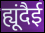
ह्यूंदैई